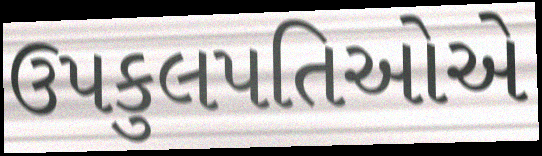
ઉપકુલપતિઓએ